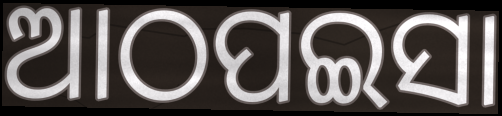
ଆଠପଇସା